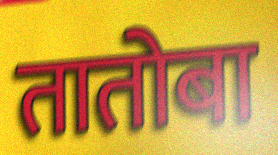
तातोबा